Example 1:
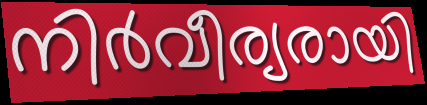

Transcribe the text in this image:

നിർവീര്യരായി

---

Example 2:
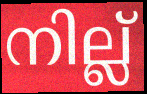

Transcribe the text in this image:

നില്ല്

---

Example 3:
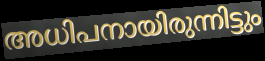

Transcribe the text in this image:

അധിപനായിരുന്നിട്ടും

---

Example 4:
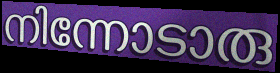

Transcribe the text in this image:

നിന്നോടാരു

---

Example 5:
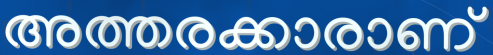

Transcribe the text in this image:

അത്തരക്കാരാണ്